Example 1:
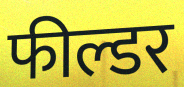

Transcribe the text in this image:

फील्डर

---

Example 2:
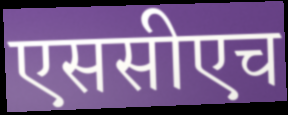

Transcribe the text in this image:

एससीएच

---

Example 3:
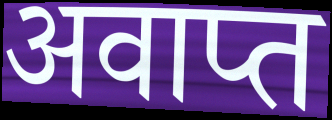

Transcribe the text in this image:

अवाप्त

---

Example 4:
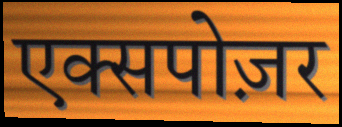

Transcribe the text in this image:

एक्सपोज़र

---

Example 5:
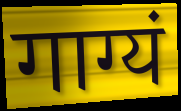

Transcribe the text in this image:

गाग्यं